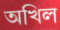
অখিল